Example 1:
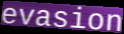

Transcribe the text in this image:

evasion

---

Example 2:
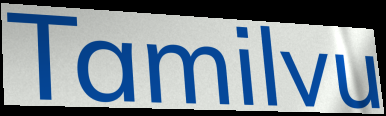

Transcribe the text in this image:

Tamilvu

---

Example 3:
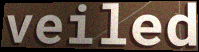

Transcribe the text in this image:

veiled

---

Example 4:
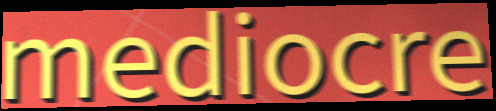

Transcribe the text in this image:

mediocre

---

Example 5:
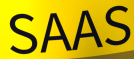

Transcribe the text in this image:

SAAS